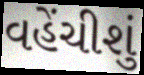
વહેંચીશું